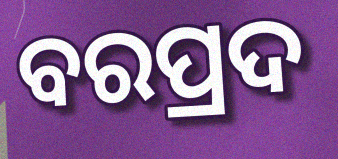
ବରପ୍ରଦ